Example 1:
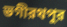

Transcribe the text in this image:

ভগীরথপুর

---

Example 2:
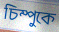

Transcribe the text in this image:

চিম্পুকে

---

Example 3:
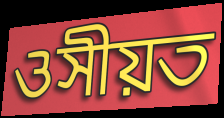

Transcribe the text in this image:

ওসীয়ত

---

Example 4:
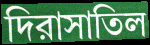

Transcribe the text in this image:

দিরাসাতিল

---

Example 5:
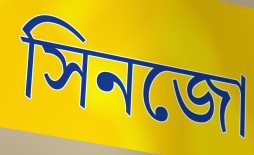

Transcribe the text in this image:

সিনজো